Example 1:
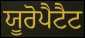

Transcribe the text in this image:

ਯੂਰੋਪੈਟੈਟ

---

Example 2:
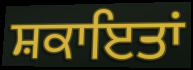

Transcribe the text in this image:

ਸ਼ਕਾਇਤਾਂ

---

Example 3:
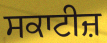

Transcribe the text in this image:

ਸਕਾਟੀਜ਼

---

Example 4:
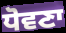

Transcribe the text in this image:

ਧੋਵਣਾ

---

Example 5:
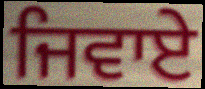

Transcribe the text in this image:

ਜਿਵਾਏ